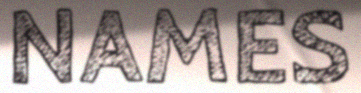
NAMES